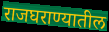
राजघराण्यातील